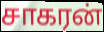
சாகரன்